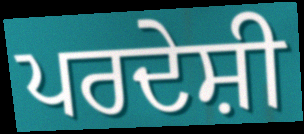
ਪਰਦੇਸ਼ੀ